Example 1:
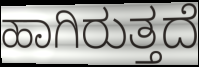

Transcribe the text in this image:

ಹಾಗಿರುತ್ತದೆ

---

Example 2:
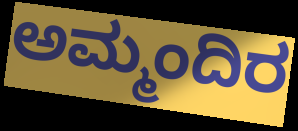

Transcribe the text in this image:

ಅಮ್ಮಂದಿರ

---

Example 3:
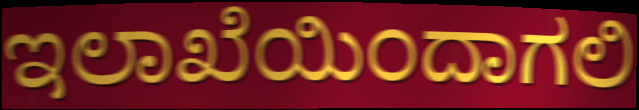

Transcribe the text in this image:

ಇಲಾಖೆಯಿಂದಾಗಲಿ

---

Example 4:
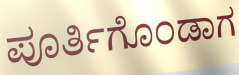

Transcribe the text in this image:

ಪೂರ್ತಿಗೊಂಡಾಗ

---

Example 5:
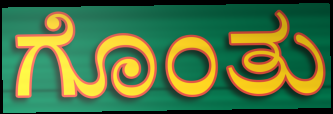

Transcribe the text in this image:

ಗೊಂತು